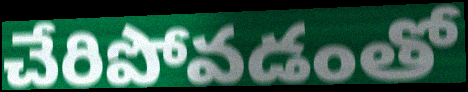
చేరిపోవడంతో